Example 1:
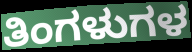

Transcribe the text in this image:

ತಿಂಗಳುಗಳ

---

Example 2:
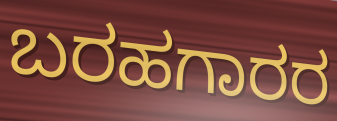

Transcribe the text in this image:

ಬರಹಗಾರರ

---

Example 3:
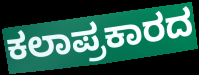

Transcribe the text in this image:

ಕಲಾಪ್ರಕಾರದ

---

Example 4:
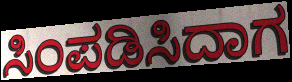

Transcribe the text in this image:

ಸಿಂಪಡಿಸಿದಾಗ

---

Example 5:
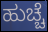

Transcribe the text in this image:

ಹುಚ್ಚೆ